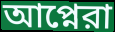
আপ্নেরা